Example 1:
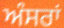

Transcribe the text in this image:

ਅੰਸਰਾਂ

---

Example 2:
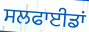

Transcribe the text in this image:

ਸਲਫਾਈਡਾਂ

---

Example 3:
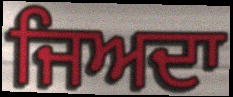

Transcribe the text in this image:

ਜਿਅਦਾ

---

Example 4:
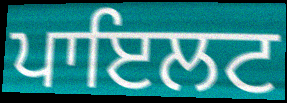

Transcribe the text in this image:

ਪਾਇਲਟ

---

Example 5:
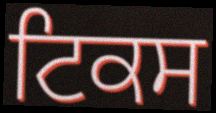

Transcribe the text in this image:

ਟਿਕਸ